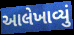
આલેખાવ્યું